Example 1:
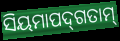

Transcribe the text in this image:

ସିୟମାପଦ୍‌ଗତାମ୍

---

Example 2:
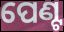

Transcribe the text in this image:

ପେଣ୍ଟ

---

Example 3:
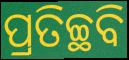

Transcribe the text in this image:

ପ୍ରତିଚ୍ଛବି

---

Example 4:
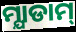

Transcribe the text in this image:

ମ୍ଯାଡାମ୍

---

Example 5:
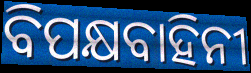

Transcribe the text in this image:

ବିପକ୍ଷବାହିନୀ